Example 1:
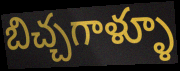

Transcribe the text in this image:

బిచ్చగాళ్ళూ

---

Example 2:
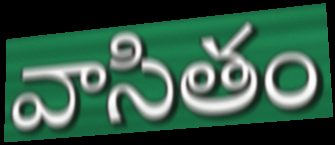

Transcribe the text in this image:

వాసితం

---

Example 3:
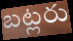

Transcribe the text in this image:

బట్లరు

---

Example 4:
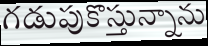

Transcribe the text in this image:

గడుపుకొస్తున్నాను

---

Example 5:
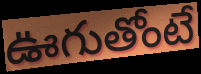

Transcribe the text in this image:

ఊగుతోంటే